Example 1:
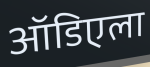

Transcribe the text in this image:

ऑडिएला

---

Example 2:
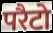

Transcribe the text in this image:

परैटो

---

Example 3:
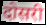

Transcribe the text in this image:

दोसरी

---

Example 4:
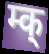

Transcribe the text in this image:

म्क्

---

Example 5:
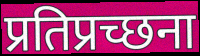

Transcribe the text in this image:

प्रतिप्रच्छना